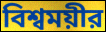
বিশ্বময়ীর